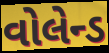
વોલેન્ડ